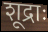
शूद्राः